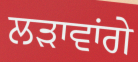
ਲੜਾਵਾਂਗੇ